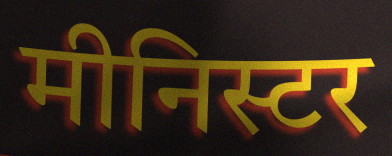
मीनिस्टर